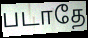
படாதே